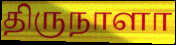
திருநாளா